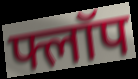
फ्लॉप